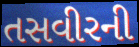
તસવીરની